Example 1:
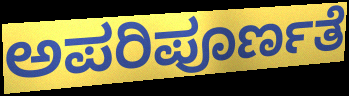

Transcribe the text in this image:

ಅಪರಿಪೂರ್ಣತೆ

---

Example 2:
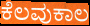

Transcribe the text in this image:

ಕೆಲವುಕಾಲ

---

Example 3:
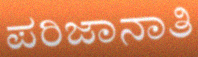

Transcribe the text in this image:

ಪರಿಜಾನಾತಿ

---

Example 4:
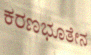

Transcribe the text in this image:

ಕರಣಭೂತೇನ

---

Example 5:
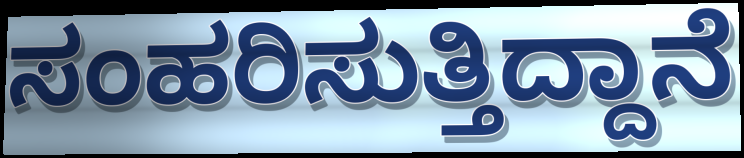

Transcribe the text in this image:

ಸಂಹರಿಸುತ್ತಿದ್ದಾನೆ